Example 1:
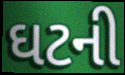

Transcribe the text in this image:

ઘટની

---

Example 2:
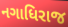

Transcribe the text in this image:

નગાધિરાજ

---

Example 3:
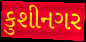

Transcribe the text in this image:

કુશીનગર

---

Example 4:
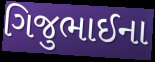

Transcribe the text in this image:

ગિજુભાઈના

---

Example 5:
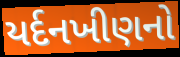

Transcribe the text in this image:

યર્દનખીણનો